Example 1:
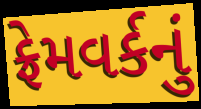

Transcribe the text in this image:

ફ્રેમવર્કનું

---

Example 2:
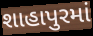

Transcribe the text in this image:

શાહાપુરમાં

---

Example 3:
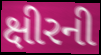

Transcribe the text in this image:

ક્ષીરની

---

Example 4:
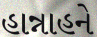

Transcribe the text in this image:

હાન્નાહને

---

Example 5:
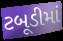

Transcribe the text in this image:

ટબૂડીમાં